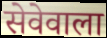
सेवेवाला